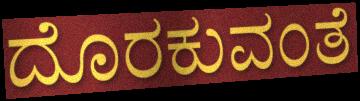
ದೊರಕುವಂತೆ